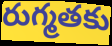
రుగ్మతకు